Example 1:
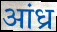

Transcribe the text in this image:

आंध्र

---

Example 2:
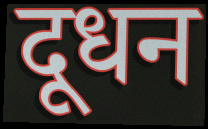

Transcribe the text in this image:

दूधन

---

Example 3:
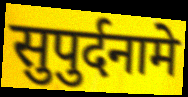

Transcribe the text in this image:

सुपुर्दनामे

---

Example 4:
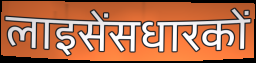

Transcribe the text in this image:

लाइसेंसधारकों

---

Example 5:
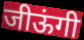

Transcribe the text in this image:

जीऊंगी